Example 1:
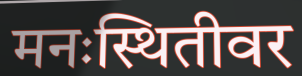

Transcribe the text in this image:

मनःस्थितीवर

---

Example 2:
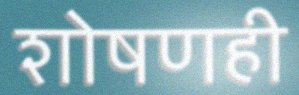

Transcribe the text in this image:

शोषणही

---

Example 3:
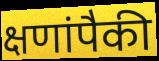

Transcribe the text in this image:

क्षणांपैकी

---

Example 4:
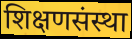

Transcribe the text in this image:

शिक्षणसंस्था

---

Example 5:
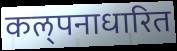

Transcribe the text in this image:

कल्पनाधारित